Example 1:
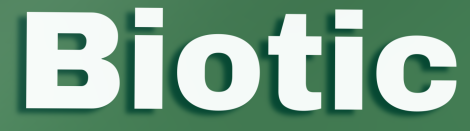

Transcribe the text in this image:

Biotic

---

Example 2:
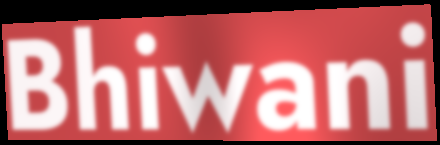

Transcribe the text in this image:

Bhiwani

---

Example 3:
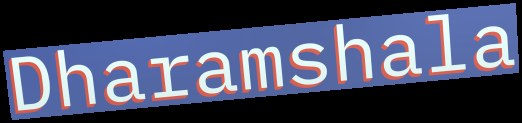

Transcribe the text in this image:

Dharamshala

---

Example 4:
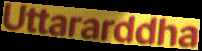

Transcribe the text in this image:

Uttararddha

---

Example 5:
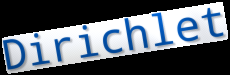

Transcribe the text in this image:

Dirichlet